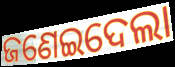
ଜଣେଇଦେଲା